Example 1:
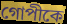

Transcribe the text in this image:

গোপীকে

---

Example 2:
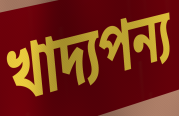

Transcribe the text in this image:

খাদ্যপন্য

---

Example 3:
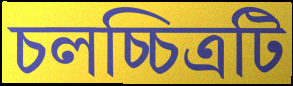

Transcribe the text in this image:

চলচ্চিত্রটি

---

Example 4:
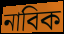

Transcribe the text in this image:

নাবিক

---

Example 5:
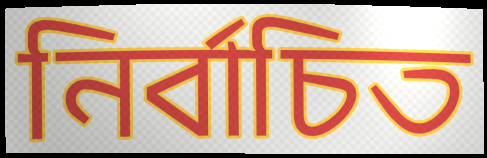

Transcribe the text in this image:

নির্বাচিত